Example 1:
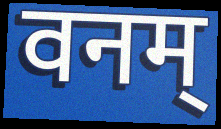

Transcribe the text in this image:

वनम्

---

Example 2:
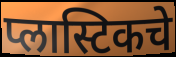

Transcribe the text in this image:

प्लास्टिकचे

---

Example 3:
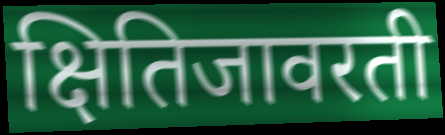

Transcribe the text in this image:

क्षितिजावरती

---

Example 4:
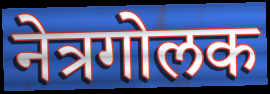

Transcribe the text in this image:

नेत्रगोलक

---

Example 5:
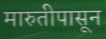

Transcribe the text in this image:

मारुतीपासून